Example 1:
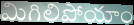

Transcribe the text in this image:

మిగిలిపోయాం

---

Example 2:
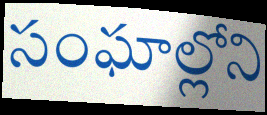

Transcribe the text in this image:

సంఘాల్లోని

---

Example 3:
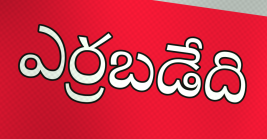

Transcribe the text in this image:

ఎర్రబడేది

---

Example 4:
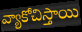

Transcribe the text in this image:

వ్యాకోచిస్తాయి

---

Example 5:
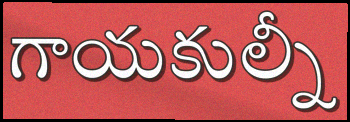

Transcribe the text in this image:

గాయకుల్నీ